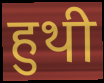
हुथी